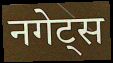
नगेट्स